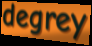
degrey